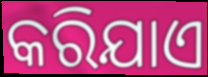
କରିଯାଏ